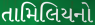
તામિલિયનો